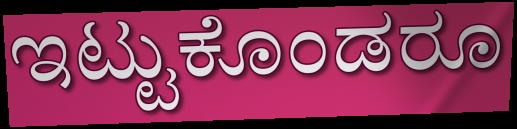
ಇಟ್ಟುಕೊಂಡರೂ